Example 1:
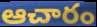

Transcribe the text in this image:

ఆచారం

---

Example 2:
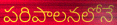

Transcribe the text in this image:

పరిపాలనలోనే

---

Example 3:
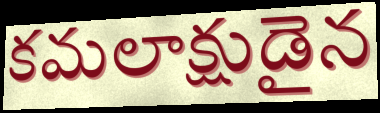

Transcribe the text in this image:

కమలాక్షుడైన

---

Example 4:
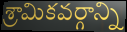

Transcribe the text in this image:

శ్రామికవర్గాన్ని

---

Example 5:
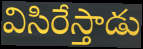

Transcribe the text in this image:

విసిరేస్తాడు